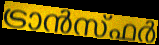
ട്രാൻസ്ഫർ